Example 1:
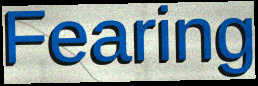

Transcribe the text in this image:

Fearing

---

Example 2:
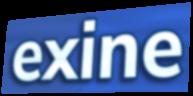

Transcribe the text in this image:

exine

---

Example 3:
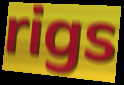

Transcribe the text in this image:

rigs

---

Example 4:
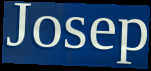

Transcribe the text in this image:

Josep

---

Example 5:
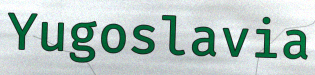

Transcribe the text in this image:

Yugoslavia